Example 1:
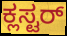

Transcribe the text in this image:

ಕ್ಲಸ್ಟರ್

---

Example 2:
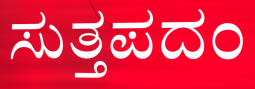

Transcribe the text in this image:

ಸುತ್ತಪದಂ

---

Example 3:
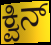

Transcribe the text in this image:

ಕ್ವಿನ್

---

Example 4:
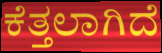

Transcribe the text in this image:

ಕೆತ್ತಲಾಗಿದೆ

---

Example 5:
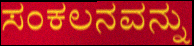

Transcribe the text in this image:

ಸಂಕಲನವನ್ನು